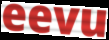
eevu